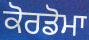
ਕੋਰਡੋਮਾ